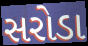
સરોડા